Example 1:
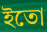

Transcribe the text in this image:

ইতো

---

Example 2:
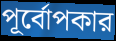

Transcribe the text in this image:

পূর্বোপকার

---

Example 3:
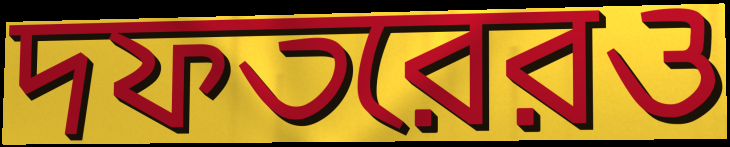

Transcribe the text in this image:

দফতরেরও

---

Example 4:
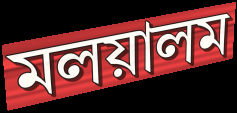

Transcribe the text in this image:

মলয়ালম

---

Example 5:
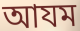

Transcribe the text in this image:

আযম